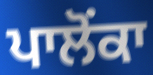
ਪਾਲੋਂਕਾ